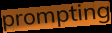
prompting